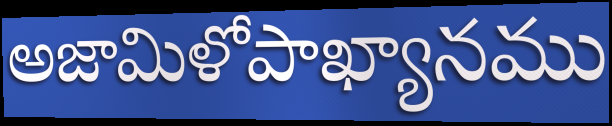
అజామిళోపాఖ్యానము